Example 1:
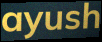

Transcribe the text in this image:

ayush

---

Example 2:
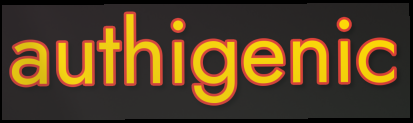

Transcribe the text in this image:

authigenic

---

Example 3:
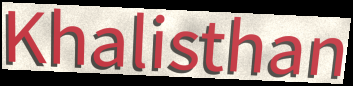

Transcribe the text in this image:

Khalisthan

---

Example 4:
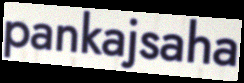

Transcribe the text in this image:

pankajsaha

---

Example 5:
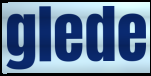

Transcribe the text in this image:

glede